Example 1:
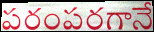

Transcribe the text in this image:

పరంపరగానే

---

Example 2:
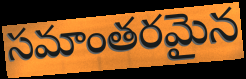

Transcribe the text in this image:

సమాంతరమైన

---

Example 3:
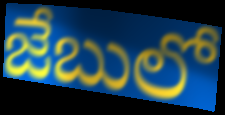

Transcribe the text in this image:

జేబులో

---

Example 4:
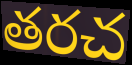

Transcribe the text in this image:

తరచ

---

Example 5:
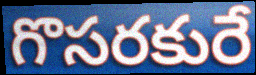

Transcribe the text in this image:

గొసరకురే